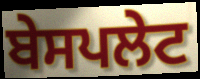
ਬੇਸਪਲੇਟ